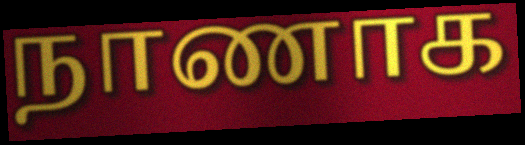
நாணாக